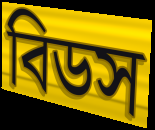
বিডস